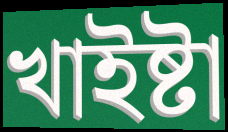
খাইষ্টা